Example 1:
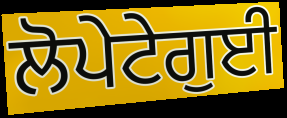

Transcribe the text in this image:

ਲੋਪੇਟੇਗੁਈ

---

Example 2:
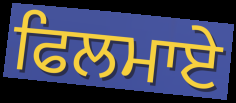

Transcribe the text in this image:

ਫਿਲਮਾਏ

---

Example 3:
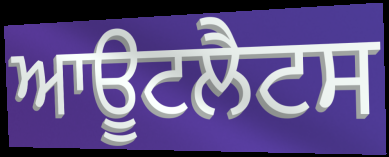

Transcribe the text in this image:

ਆਊਟਲੈਟਸ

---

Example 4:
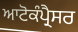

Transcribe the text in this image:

ਆਟੋਕੰਪ੍ਰੈਸਰ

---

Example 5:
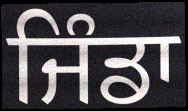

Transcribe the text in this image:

ਜਿੰਡਾ